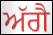
ਅੱਗੈ